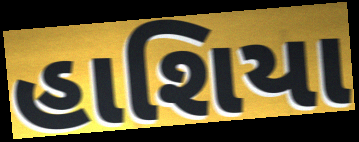
હાશિયા